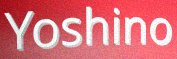
Yoshino